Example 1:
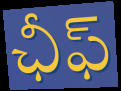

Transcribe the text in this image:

ఛీఫ్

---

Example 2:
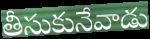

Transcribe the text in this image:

తీసుకునేవాడు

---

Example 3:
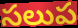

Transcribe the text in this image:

సలుప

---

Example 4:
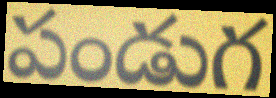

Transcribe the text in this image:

పండుగ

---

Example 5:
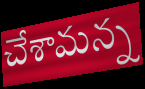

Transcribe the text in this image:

చేశామన్న